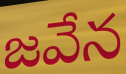
జవేన